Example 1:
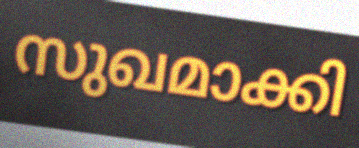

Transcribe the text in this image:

സുഖമാക്കി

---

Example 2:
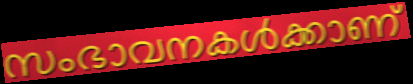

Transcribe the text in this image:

സംഭാവനകൾക്കാണ്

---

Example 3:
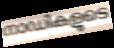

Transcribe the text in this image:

നാഡികളുടെ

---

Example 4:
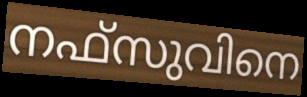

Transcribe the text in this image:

നഫ്സുവിനെ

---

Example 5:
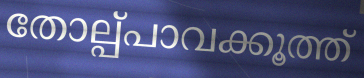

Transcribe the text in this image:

തോല്പ്പാവക്കൂത്ത്